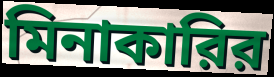
মিনাকারির